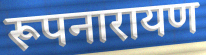
रूपनारायण